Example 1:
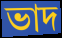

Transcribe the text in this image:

ভাদ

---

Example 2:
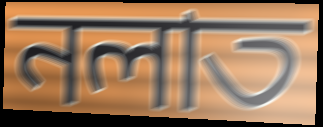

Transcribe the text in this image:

নলাত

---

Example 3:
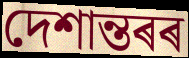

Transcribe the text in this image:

দেশান্তৰৰ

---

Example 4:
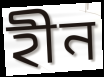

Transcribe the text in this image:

হীন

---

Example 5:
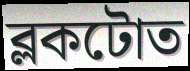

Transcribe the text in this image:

ব্লকটোত